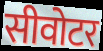
सीवोटर